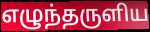
எழுந்தருளிய